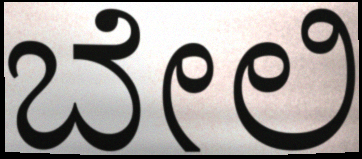
ಬೇಲಿ